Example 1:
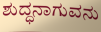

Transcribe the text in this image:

ಶುದ್ಧನಾಗುವನು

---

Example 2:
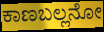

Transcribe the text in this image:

ಕಾಣಬಲ್ಲನೋ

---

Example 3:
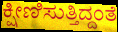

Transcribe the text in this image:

ಕ್ಷೀಣಿಸುತ್ತಿದ್ದಂತೆ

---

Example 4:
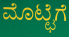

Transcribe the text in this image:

ಮೊಟ್ಟೆಗೆ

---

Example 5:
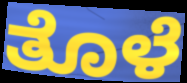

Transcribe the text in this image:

ತೊಳೆ